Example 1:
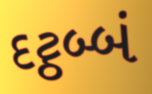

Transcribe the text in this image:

દટ્ઠબ્બં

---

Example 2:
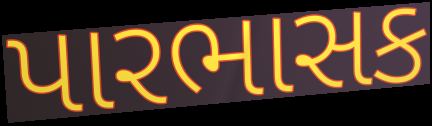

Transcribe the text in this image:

પારભાસક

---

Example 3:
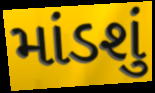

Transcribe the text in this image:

માંડશું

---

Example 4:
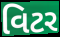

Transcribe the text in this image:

વિટર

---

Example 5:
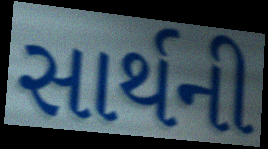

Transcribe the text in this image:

સાર્થની